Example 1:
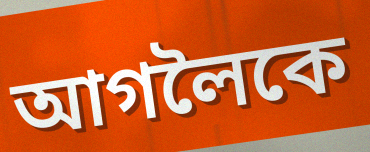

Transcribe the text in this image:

আগলৈকে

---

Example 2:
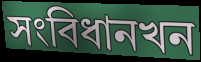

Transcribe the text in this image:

সংবিধানখন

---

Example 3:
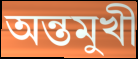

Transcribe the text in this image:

অন্তমুখী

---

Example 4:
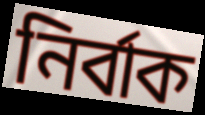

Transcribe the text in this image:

নিৰ্বাক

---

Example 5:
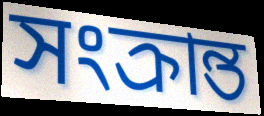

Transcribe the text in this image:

সংক্ৰান্ত